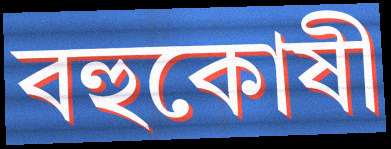
বহুকোষী